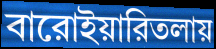
বারোইয়ারিতলায়